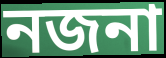
নজনা